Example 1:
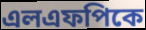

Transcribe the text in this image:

এলএফপিকে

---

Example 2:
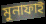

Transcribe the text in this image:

মুনাফাই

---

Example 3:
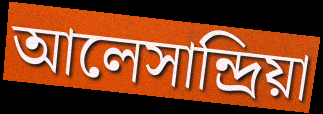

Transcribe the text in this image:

আলেসান্দ্রিয়া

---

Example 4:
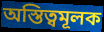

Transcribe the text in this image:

অস্তিত্বমূলক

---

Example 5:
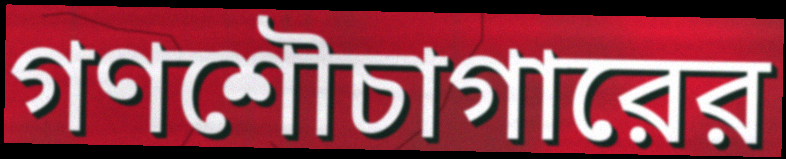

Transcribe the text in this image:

গণশৌচাগারের